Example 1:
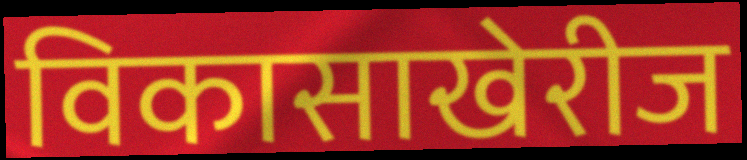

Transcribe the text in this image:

विकासाखेरीज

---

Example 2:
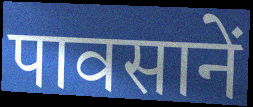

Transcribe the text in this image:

पावसानें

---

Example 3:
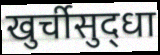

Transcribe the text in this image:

खुर्चीसुद्धा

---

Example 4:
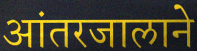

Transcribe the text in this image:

आंतरजालाने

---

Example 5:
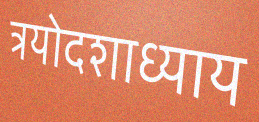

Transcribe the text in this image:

त्रयोदशाध्याय